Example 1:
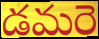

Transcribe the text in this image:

డమరె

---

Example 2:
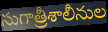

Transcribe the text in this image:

సుగాత్రీశాలీనుల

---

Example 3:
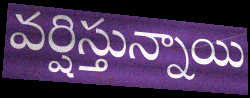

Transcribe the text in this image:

వర్షిస్తున్నాయి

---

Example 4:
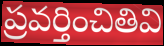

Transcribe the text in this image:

ప్రవర్తించితివి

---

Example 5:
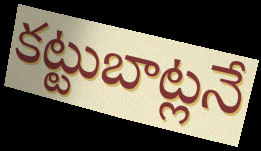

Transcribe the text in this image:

కట్టుబాట్లనే